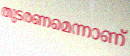
തുടരണമെന്നാണ്